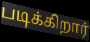
படிக்கிறார்